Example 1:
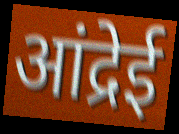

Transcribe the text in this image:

आंद्रेई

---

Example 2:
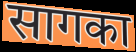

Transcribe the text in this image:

सागका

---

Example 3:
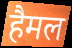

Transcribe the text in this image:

हैमल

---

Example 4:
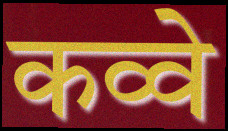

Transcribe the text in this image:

कव्वे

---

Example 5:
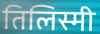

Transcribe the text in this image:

तिलिस्मी